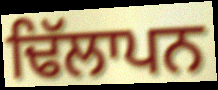
ਢਿੱਲਾਪਨ